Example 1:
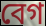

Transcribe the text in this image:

বেগ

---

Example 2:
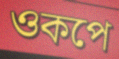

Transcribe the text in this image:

ওকপে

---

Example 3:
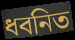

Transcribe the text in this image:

ধবনিত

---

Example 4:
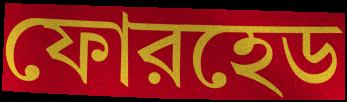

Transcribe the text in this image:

ফোরহেড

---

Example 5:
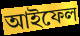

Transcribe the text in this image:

আইফেল